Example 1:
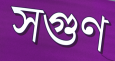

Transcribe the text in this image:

সগুণ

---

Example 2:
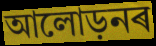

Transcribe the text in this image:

আলোড়নৰ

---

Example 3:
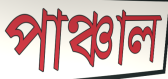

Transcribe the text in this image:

পাঞ্চাল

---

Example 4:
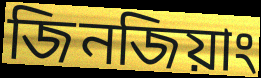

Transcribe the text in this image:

জিনজিয়াং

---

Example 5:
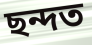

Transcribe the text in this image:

ছন্দত